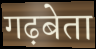
गढ़बेता